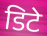
डिटे